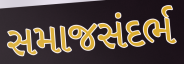
સમાજસંદર્ભ